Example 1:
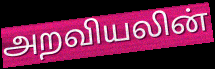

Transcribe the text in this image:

அறவியலின்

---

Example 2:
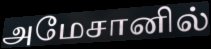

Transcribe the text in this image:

அமேசானில்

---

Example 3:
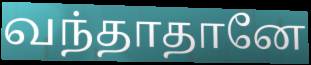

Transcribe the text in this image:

வந்தாதானே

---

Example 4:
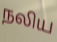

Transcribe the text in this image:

நலிய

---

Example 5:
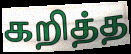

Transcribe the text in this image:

கறித்த